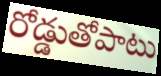
రోడ్డుతోపాటు